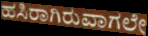
ಹಸಿರಾಗಿರುವಾಗಲೇ